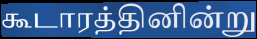
கூடாரத்தினின்று